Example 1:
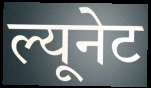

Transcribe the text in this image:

ल्यूनेट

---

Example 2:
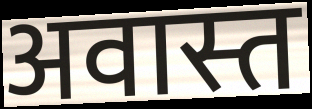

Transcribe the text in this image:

अवास्त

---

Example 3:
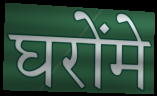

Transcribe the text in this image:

घरोंमे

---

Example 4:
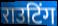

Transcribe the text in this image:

राउटिंग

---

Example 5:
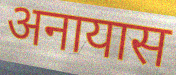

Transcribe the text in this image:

अनायास